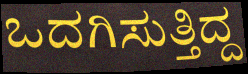
ಒದಗಿಸುತ್ತಿದ್ದ